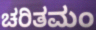
ಚರಿತಮಂ